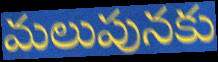
మలుపునకు